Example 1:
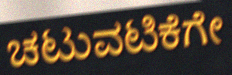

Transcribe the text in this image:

ಚಟುವಟಿಕೆಗೇ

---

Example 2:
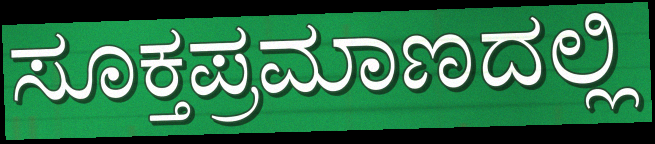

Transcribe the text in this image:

ಸೂಕ್ತಪ್ರಮಾಣದಲ್ಲಿ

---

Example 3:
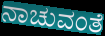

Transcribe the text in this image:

ನಾಚುವಂತೆ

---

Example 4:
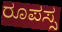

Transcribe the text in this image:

ರೂಪಸ್ಸ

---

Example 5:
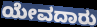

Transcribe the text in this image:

ಯೇವದಾರು